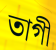
তাগী